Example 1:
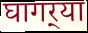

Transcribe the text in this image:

घागर्या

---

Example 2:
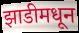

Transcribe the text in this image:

झाडीमधून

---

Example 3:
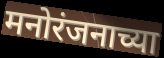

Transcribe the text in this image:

मनोरंजनाच्या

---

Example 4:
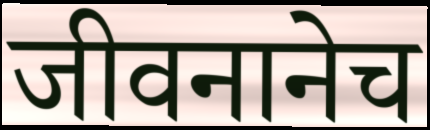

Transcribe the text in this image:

जीवनानेच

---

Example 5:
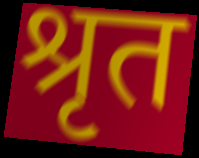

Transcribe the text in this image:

श्रृत